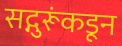
सद्गुरूंकडून